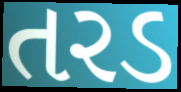
તરડ